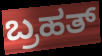
ಬ್ರಹತ್